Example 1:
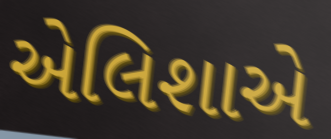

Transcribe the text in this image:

એલિશાએ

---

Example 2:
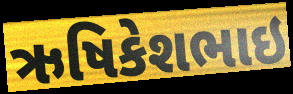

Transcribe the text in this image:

ઋષિકેશભાઇ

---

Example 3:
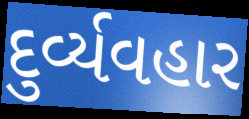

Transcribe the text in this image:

દુર્વ્યવહાર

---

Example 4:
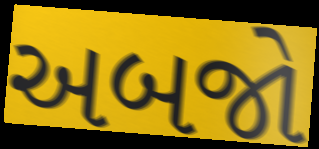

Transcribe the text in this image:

અબજો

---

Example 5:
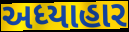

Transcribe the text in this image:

અધ્યાહાર